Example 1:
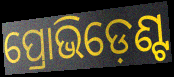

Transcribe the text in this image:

ପ୍ରୋଭିଡ଼େଣ୍ଟ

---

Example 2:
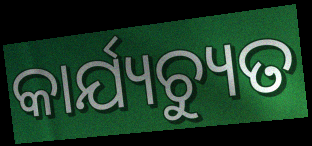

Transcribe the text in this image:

କାର୍ଯ୍ୟଚ୍ୟୁତ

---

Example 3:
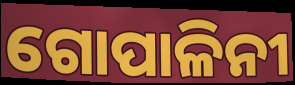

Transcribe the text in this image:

ଗୋପାଳିନୀ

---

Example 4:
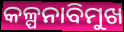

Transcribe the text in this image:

କଳ୍ପନାବିମୁଖ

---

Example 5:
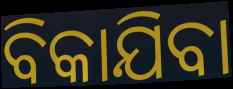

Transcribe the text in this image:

ବିକାଯିବା